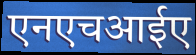
एनएचआईए